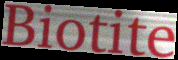
Biotite